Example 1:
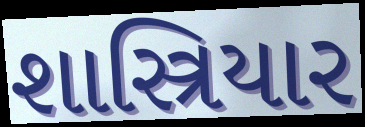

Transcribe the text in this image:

શાસ્ત્રિયાર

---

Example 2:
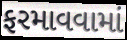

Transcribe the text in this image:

ફરમાવવામાં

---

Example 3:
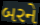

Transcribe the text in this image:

બરને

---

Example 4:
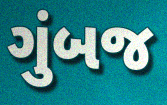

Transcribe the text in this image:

ગુંબજ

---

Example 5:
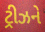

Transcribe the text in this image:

ટ્રીઝને